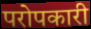
परोपकारी